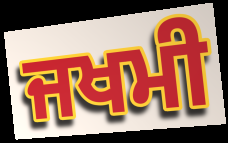
ਜਖਮੀ